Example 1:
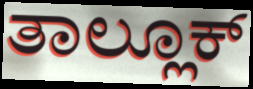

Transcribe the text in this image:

ತಾಲ್ಲೂಕ್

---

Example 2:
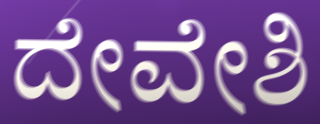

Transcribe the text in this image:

ದೇವೇಶಿ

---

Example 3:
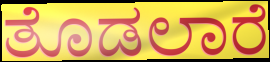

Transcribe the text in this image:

ತೊಡಲಾರೆ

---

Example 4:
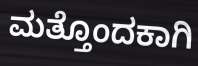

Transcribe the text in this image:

ಮತ್ತೊಂದಕಾಗಿ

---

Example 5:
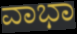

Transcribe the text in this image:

ವಾಭಾ